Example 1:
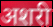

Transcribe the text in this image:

अशरी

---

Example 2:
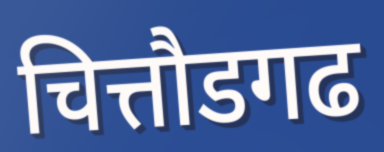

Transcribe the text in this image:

चित्तौडगढ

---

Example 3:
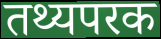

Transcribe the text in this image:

तथ्यपरक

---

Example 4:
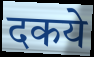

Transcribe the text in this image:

दकये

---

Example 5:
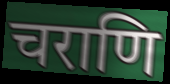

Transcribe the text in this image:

चराणि